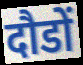
दौडों